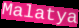
Malatya